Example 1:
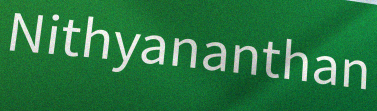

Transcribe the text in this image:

Nithyananthan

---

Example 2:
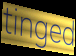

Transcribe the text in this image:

tinged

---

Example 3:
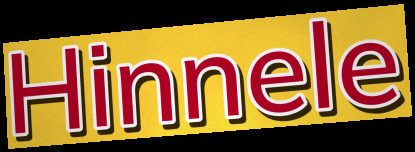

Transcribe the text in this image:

Hinnele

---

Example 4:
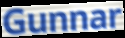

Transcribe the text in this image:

Gunnar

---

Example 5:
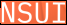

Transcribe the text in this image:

NSUI